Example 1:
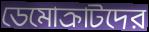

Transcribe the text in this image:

ডেমোক্রাটদের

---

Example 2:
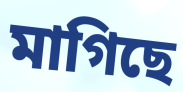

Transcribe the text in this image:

মাগিছে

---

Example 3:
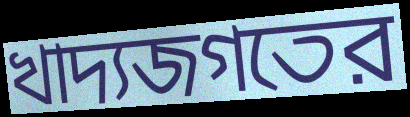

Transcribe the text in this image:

খাদ্যজগতের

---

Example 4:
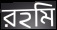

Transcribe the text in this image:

রহমি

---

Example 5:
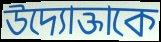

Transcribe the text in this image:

উদ্যোক্তাকে